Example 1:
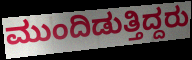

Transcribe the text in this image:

ಮುಂದಿಡುತ್ತಿದ್ದರು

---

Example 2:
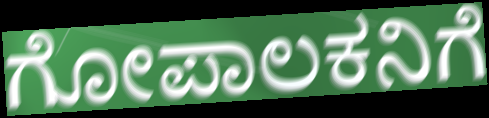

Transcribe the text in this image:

ಗೋಪಾಲಕನಿಗೆ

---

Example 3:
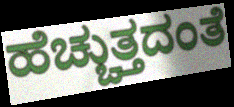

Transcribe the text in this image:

ಹೆಚ್ಚುತ್ತದಂತೆ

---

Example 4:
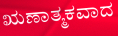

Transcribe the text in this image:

ಋಣಾತ್ಮಕವಾದ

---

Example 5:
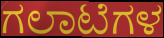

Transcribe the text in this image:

ಗಲಾಟೆಗಳ